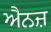
ਐਨਜ਼